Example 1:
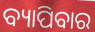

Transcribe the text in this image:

ବ୍ୟାପିବାର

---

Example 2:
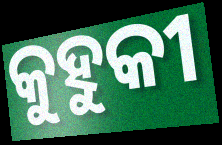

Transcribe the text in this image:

କୁହୁକୀ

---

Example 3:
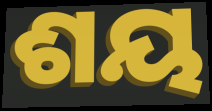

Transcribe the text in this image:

ଶୟ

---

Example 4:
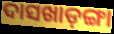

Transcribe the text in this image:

ଦାସଖାଡ଼ଙ୍ଗା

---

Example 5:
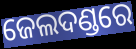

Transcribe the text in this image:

ଜେଲଦଣ୍ଡରେ